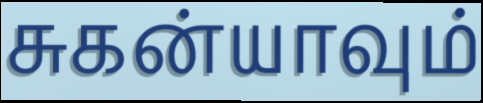
சுகன்யாவும்